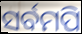
ସର୍ବମପି